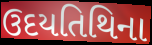
ઉદયતિથિના